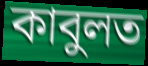
কাবুলত